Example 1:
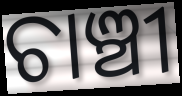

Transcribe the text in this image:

ଚାଞ୍ଚୀ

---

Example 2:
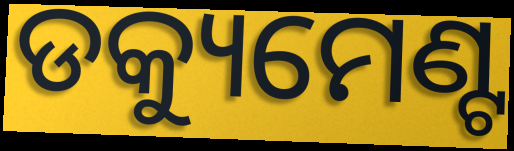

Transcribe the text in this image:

ଡକ୍ୟୁମେଣ୍ଟ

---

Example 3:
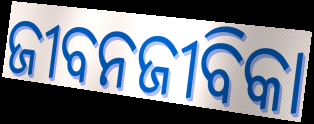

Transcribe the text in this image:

ଜୀବନଜୀବିକା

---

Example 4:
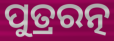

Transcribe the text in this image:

ପୁତ୍ରରତ୍ନ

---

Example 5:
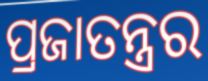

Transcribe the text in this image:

ପ୍ରଜାତନ୍ତ୍ରର